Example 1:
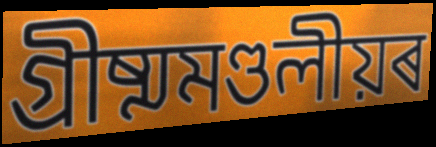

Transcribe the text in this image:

গ্ৰীষ্মমণ্ডলীয়ৰ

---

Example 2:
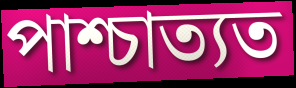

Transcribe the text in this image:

পাশ্চাত্যত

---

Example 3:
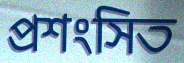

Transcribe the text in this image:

প্ৰশংসিত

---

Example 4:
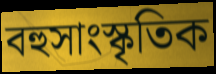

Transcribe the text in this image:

বহুসাংস্কৃতিক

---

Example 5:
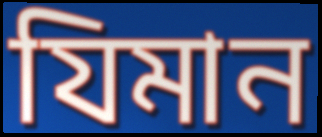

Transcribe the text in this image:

যিমান